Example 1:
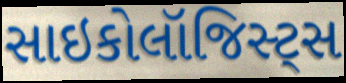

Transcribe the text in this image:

સાઇકોલૉજિસ્ટ્સ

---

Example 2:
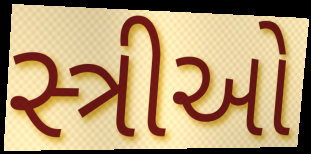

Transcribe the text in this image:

સ્ત્રીઓ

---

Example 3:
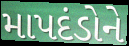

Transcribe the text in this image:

માપદંડોને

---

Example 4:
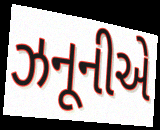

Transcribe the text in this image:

ઝનૂનીએ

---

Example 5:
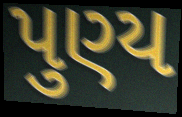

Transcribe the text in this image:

પુણ્ય